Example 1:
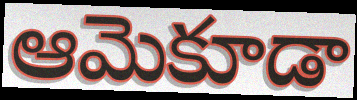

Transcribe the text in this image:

ఆమెకూడా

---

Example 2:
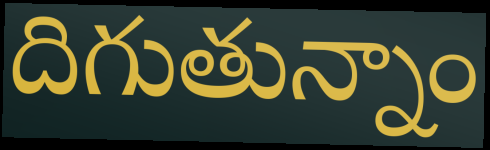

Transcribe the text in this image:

దిగుతున్నాం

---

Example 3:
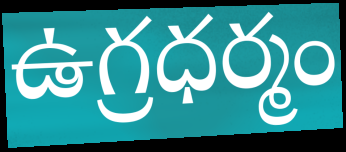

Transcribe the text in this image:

ఉగ్రధర్మం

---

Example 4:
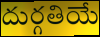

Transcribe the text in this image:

దుర్గతియే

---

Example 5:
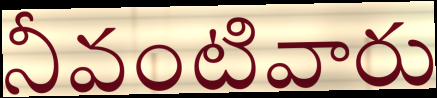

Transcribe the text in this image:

నీవంటివారు